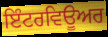
ਇੰਟਰਵਿਊਅਰ